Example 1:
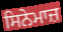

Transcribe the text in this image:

ਸਿਨੇਮਾਜ਼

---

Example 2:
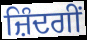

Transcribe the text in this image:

ਜ਼ਿੰਦਗੀਂ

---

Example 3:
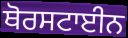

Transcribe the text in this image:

ਥੋਰਸਟਾਈਨ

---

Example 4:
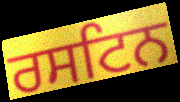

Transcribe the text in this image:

ਰਸਟਿਨ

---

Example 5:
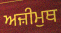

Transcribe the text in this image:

ਅਜ਼ੀਮੁਥ